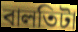
বালতিটা